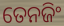
ତେନଜିଂ